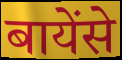
बायेंसे